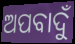
ଅପବାଦୁଁ